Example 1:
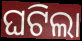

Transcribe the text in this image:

ଘଟିଲା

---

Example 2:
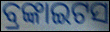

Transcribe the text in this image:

ବ୍ରଙ୍କାଇଟସ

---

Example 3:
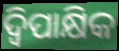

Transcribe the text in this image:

ଦ୍ୱିପାକ୍ଷିକ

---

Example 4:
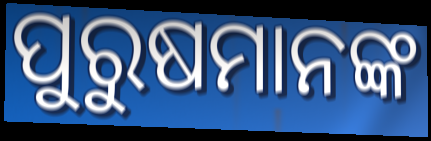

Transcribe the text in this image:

ପୁରୁଷମାନଙ୍କ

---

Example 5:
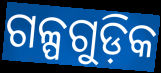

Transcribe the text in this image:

ଗଳ୍ପଗୁଡ଼ିକ